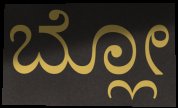
ಬ್ಲೋ